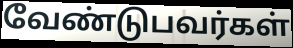
வேண்டுபவர்கள்